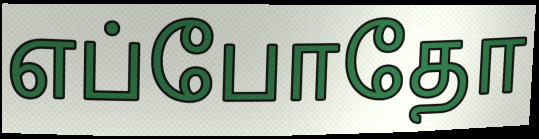
எப்போதோ